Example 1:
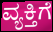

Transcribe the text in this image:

ವ್ಯಕ್ತಿಗೆ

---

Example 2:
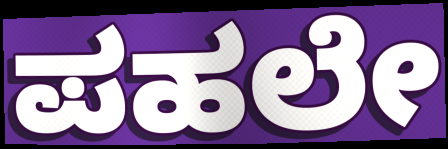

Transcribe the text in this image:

ಪಹಲೇ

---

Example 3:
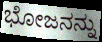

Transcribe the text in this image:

ಭೋಜನನ್ನು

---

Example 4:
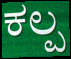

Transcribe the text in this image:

ಕಲ್ಪ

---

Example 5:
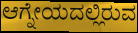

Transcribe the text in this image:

ಆಗ್ನೇಯದಲ್ಲಿರುವ